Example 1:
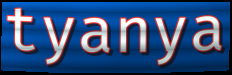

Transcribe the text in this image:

tyanya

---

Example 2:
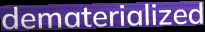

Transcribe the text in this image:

dematerialized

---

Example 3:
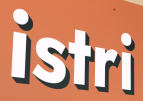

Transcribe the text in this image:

istri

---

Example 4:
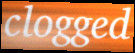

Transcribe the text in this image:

clogged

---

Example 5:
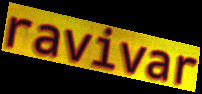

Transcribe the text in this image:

ravivar